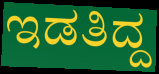
ಇಡತಿದ್ದ